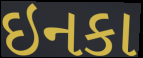
ઇનકા